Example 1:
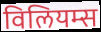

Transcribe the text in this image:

विलियम्स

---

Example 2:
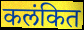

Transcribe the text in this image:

कलंकित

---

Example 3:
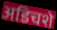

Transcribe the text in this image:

अडिचशे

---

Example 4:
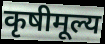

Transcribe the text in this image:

कृषीमूल्य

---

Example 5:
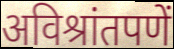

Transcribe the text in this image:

अविश्रांतपणें